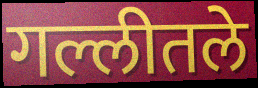
गल्लीतले